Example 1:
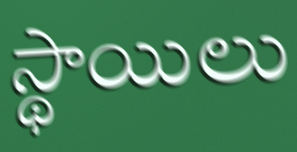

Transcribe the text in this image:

స్థాయిలు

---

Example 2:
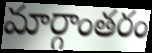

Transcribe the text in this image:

మార్గాంతరం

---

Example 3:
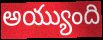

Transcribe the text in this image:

అయ్యుంది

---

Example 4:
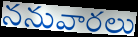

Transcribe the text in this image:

ననువారలు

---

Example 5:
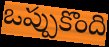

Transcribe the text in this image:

ఒప్పుకొంది